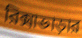
রিক্সাভাড়ার